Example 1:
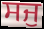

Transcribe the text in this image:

ਸਜੁ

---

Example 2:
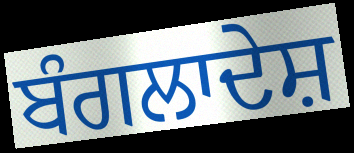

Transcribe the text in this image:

ਬੰਗਲਾਦੇਸ਼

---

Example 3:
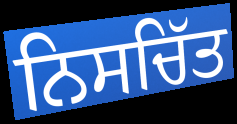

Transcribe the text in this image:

ਨਿਸਚਿੱਤ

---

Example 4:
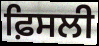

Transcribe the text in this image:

ਫ਼ਿਸਲੀ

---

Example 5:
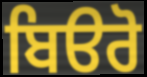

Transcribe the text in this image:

ਬਿੳਰੋ